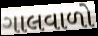
ગાલવાળો